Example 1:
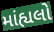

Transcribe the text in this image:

માંહ્યલો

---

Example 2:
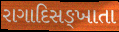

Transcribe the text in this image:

રાગાદિસઙ્ખાતા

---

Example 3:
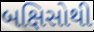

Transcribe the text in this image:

બક્ષિસોથી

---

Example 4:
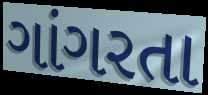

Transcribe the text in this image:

ગાંગરતા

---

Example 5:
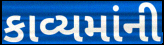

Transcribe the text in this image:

કાવ્યમાંની